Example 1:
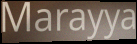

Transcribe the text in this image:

Marayya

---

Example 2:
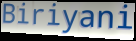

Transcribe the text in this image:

Biriyani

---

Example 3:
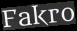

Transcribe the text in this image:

Fakro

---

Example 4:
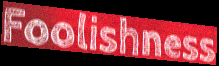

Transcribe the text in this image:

Foolishness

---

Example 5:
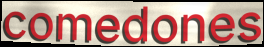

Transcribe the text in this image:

comedones